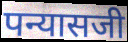
पन्यासजी